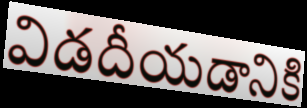
విడదీయడానికి